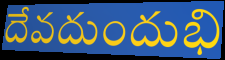
దేవదుందుభి